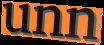
unn